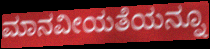
ಮಾನವೀಯತೆಯನ್ನೂ